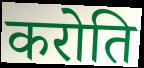
करोति